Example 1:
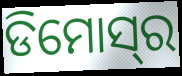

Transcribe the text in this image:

ଡିମୋସ୍‌ର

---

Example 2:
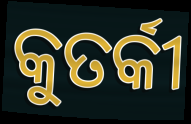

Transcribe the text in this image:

କୁତର୍କୀ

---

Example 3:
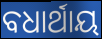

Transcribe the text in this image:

ବଧାର୍ଥାୟ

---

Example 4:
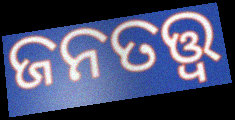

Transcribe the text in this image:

ଜନତତ୍ତ୍ୱ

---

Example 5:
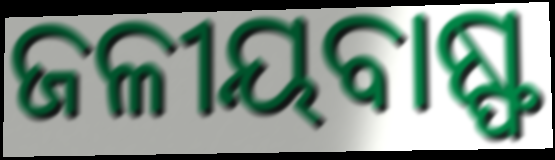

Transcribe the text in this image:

ଜଳୀୟବାଷ୍ଫ